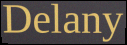
Delany